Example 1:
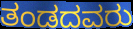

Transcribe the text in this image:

ತಂಡದವರು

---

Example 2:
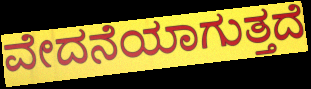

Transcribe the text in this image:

ವೇದನೆಯಾಗುತ್ತದೆ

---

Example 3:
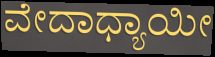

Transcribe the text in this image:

ವೇದಾಧ್ಯಾಯೀ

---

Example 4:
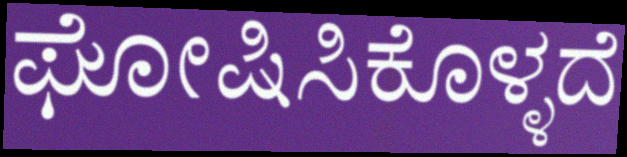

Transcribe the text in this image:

ಘೋಷಿಸಿಕೊಳ್ಳದೆ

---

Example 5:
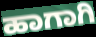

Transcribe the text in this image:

ಹಾಗಾಗಿ